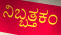
ನಿಬ್ಬತ್ತಕಂ